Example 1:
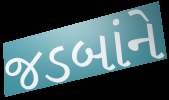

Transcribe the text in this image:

જડબાંને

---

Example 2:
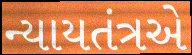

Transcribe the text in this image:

ન્યાયતંત્રએ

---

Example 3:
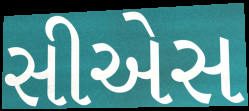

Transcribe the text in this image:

સીએસ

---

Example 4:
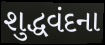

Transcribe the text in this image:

શુદ્ધવંદના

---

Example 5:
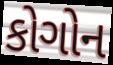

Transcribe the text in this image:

કોગોન